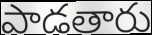
పాడతారు